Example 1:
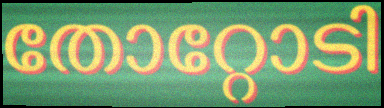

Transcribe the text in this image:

തോറ്റോടി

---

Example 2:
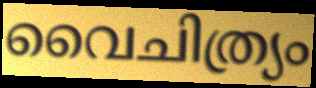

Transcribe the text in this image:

വൈചിത്ര്യം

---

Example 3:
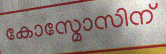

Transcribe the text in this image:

കോസ്മോസിന്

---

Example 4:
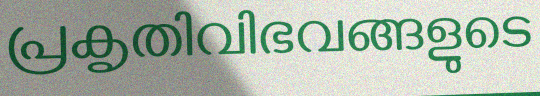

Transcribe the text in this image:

പ്രകൃതിവിഭവങ്ങളുടെ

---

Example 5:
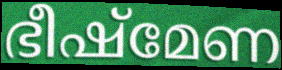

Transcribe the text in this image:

ഭീഷ്മേണ